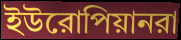
ইউরোপিয়ানরা